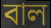
বাল